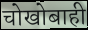
चोखोबाही